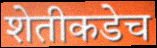
शेतीकडेच